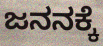
ಜನನಕ್ಕೆ